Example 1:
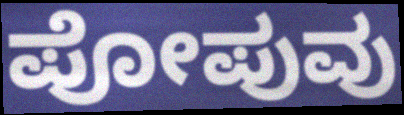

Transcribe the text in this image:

ಪೋಪುವು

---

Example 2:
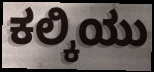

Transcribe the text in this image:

ಕಲ್ಕಿಯು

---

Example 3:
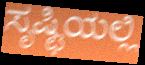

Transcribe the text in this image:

ಸೃಷ್ಟಿಯಲ್ಲಿ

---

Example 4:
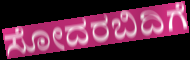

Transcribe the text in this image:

ಸೋದರಬಿದಿಗೆ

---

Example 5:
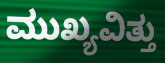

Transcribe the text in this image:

ಮುಖ್ಯವಿತ್ತು